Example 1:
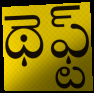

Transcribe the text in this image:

థెఫ్ట్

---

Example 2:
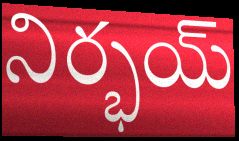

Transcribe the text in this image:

నిర్భయ్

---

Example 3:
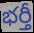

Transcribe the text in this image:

భర్తీ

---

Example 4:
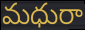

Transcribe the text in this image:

మధురా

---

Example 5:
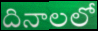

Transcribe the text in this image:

దినాలలో